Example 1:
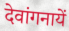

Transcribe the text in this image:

देवांगनायें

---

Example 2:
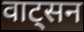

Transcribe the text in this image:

वाट्सन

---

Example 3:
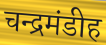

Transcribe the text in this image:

चन्द्रमंडीह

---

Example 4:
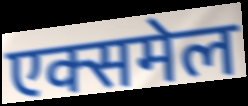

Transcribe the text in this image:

एक्समेल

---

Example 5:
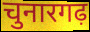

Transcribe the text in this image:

चुनारगढ़